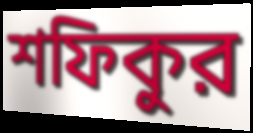
শফিকুর